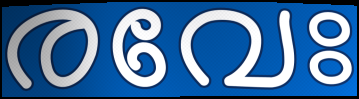
രവേഃ